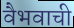
वैभवाची